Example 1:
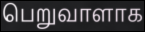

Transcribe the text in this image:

பெறுவாளாக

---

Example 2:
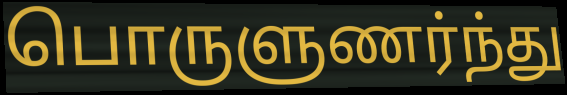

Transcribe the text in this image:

பொருளுணர்ந்து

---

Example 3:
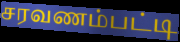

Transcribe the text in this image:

சரவணம்பட்டி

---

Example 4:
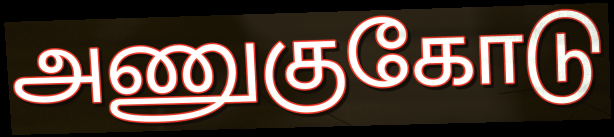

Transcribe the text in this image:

அணுகுகோடு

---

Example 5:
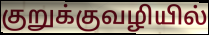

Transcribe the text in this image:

குறுக்குவழியில்